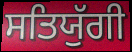
ਸਤਿਯੁੱਗੀ